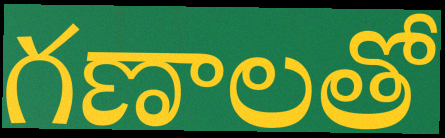
గణాలతో